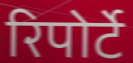
रिपोर्टे